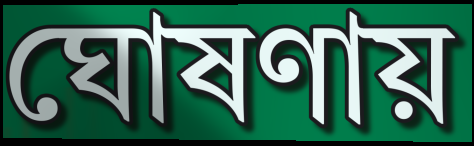
ঘোষণায়